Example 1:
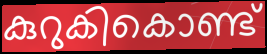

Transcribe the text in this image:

കുറുകികൊണ്ട്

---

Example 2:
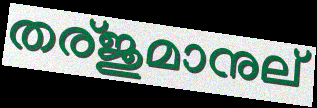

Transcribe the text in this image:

തര്ജുമാനുല്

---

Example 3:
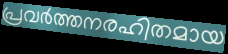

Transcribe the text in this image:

പ്രവർത്തനരഹിതമായ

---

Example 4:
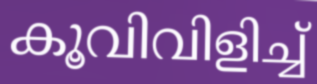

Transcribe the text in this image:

കൂവിവിളിച്ച്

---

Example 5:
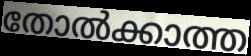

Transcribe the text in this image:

തോൽക്കാത്ത